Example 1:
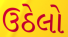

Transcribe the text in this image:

ઉઠેલો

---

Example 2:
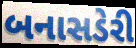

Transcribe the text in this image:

બનાસડેરી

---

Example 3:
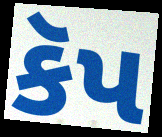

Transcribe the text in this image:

કૅપ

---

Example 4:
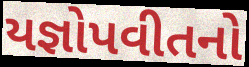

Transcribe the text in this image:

યજ્ઞોપવીતનો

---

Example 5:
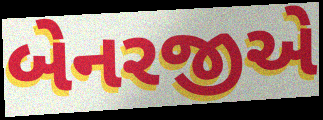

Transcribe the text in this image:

બેનરજીએ